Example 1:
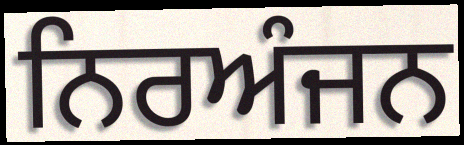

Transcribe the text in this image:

ਨਿਰਅੰਜਨ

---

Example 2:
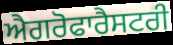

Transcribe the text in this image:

ਐਗਰੋਫਾਰੈਸਟਰੀ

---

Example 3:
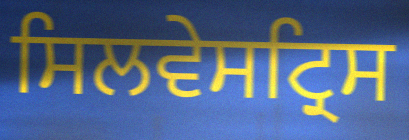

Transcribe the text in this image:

ਸਿਲਵੇਸਟ੍ਰਿਸ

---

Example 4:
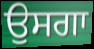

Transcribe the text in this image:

ਉਸਗਾ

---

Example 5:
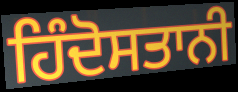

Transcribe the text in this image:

ਹਿੰਦੋਸਤਾਨੀ